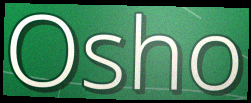
Osho